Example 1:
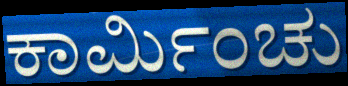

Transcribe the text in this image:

ಕಾರ್ಮಿಂಚು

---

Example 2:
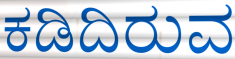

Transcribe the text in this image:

ಕಡಿದಿರುವ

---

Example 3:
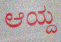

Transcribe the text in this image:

ಆಯ್ದ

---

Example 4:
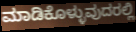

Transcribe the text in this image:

ಮಾಡಿಕೊಳ್ಳುವುದರಲ್ಲಿ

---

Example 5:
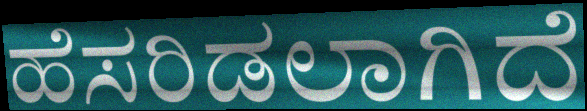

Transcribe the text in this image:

ಹೆಸರಿಡಲಾಗಿದೆ